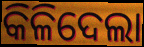
କିଳିଦେଲା